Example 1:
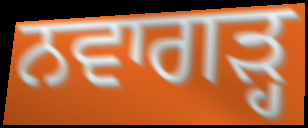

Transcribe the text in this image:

ਨਵਾਗੜ੍ਹ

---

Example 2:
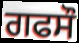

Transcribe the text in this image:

ਗਫਸੌ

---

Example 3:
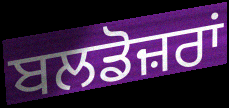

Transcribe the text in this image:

ਬਲਡੋਜ਼ਰਾਂ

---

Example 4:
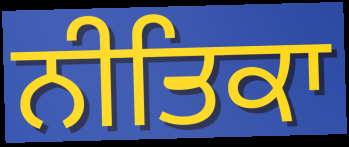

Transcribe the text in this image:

ਨੀਤਿਕਾ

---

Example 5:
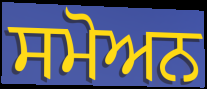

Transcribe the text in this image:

ਸਮੋਅਨ